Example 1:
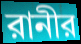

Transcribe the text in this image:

রানীর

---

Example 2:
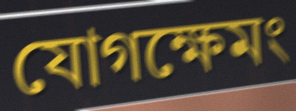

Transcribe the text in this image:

যোগক্ষেমং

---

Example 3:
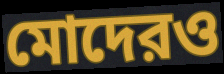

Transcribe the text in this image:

মোদেরও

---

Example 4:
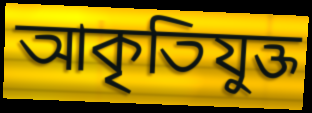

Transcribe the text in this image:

আকৃতিযুক্ত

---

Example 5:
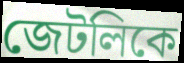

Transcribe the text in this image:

জেটলিকে